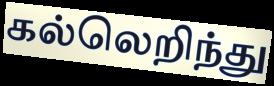
கல்லெறிந்து